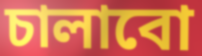
চালাবো